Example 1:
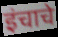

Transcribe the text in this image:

इंचाचे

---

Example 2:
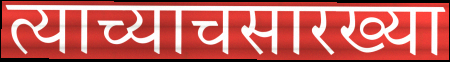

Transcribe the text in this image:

त्याच्याचसारख्या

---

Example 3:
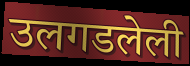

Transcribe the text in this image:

उलगडलेली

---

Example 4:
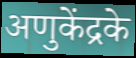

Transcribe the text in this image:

अणुकेंद्रके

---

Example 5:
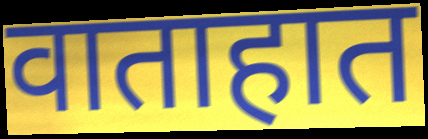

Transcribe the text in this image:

वाताहात